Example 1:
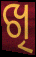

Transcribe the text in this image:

ଖି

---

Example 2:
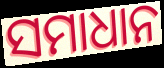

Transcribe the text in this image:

ସମାଧାନ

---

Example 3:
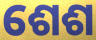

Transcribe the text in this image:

ଶେଶ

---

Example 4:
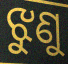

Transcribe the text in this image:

ଝୁଣୁ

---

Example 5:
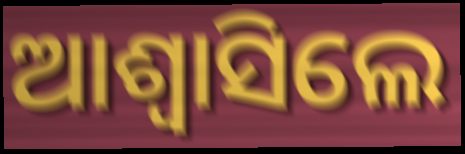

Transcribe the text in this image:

ଆଶ୍ୱାସିଲେ